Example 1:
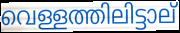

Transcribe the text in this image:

വെള്ളത്തിലിട്ടാല്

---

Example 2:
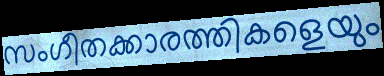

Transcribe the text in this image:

സംഗീതക്കാരത്തികളെയും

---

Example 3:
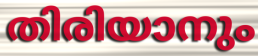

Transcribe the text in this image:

തിരിയാനും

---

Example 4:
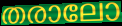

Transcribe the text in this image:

തരാലോ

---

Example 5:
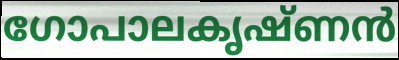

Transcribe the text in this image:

ഗോപാലകൃഷ്ണൻ